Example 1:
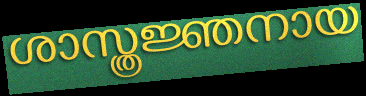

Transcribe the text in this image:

ശാസ്ത്രജ്ഞനായ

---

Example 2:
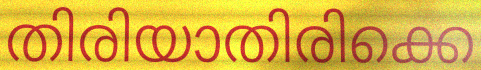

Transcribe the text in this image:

തിരിയാതിരിക്കെ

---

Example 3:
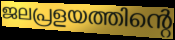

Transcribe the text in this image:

ജലപ്രളയത്തിന്റെ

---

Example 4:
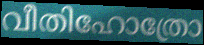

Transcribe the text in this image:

വീതിഹോത്രോ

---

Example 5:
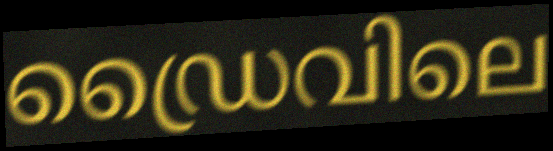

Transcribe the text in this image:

ഡ്രൈവിലെ